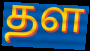
தள